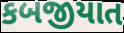
કબજીયાત